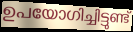
ഉപയോഗിച്ചിട്ടുണ്ട്